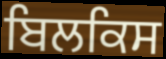
ਬਿਲਕਿਸ